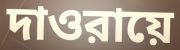
দাওরায়ে